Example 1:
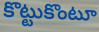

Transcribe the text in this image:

కొట్టుకొంటూ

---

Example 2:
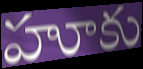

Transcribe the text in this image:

హూకు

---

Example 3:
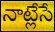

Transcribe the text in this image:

నాట్లేసే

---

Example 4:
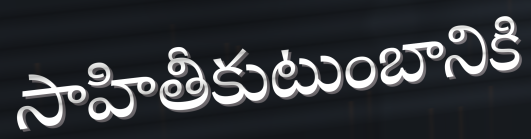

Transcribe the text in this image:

సాహితీకుటుంబానికి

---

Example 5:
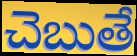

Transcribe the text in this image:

చెబుతే